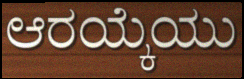
ಆರಯ್ಕೆಯು